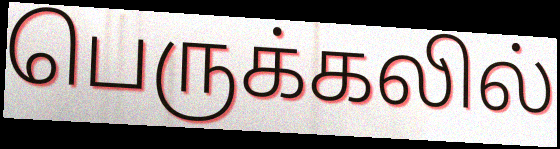
பெருக்கலில்